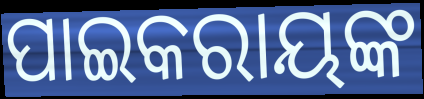
ପାଇକରାୟଙ୍କ